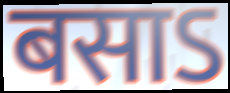
बसाऽ